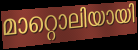
മാറ്റൊലിയായി